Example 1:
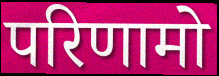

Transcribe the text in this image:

परिणामो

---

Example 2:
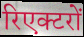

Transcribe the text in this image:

रिएक्टरों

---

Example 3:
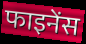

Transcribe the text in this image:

फाइनेंस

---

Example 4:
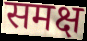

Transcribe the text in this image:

समक्ष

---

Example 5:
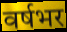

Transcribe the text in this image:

वर्षभर